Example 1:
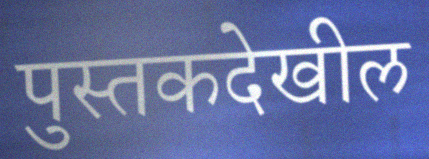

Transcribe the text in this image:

पुस्तकदेखील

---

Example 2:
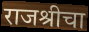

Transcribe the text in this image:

राजश्रीचा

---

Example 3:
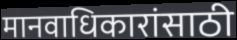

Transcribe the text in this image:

मानवाधिकारांसाठी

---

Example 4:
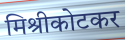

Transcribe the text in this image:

मिश्रीकोटकर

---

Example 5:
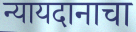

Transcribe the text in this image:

न्यायदानाचा